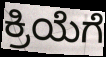
ಕ್ರಿಯೆಗೆ